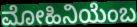
ಮೋಹಿನಿಯೆಂಬ